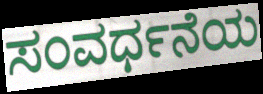
ಸಂವರ್ಧನೆಯ